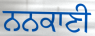
ਨਨਕਾਣੀ